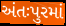
અંતઃપુરમાં